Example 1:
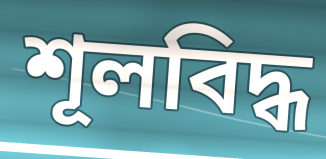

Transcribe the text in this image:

শূলবিদ্ধ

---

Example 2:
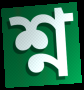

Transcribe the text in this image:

শ্ন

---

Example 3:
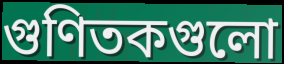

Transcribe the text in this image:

গুণিতকগুলো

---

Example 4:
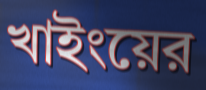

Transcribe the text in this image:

খাইংয়ের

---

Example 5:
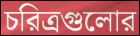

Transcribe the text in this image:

চরিত্রগুলোর